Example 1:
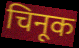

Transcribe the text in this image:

चिनूक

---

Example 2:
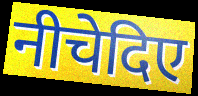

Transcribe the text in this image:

नीचेदिए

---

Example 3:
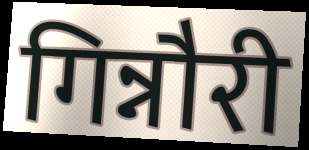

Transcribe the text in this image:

गिन्नौरी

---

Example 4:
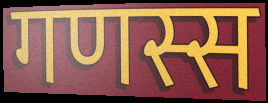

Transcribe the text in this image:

गणस्स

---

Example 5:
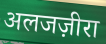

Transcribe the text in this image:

अलजज़ीरा